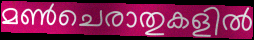
മൺചെരാതുകളിൽ